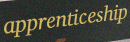
apprenticeship